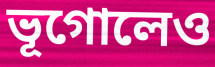
ভূগোলেও